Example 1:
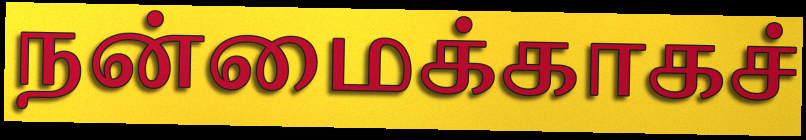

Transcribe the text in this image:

நன்மைக்காகச்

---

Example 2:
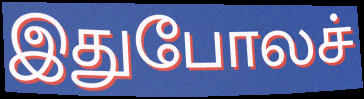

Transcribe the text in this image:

இதுபோலச்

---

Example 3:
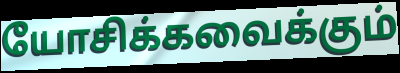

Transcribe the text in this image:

யோசிக்கவைக்கும்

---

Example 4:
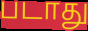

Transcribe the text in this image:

படாது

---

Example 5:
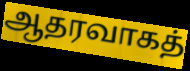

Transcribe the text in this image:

ஆதரவாகத்